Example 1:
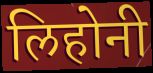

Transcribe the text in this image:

लिहोनी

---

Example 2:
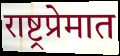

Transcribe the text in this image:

राष्ट्रप्रेमात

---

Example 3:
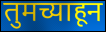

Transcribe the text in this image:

तुमच्याहून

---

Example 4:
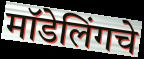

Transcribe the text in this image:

मॉडेलिंगचे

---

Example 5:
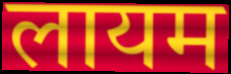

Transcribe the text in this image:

लायम